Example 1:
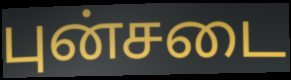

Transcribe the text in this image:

புன்சடை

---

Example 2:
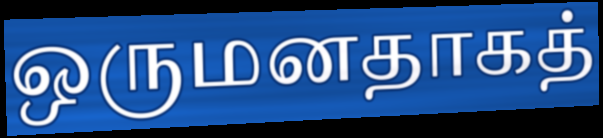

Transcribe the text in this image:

ஒருமனதாகத்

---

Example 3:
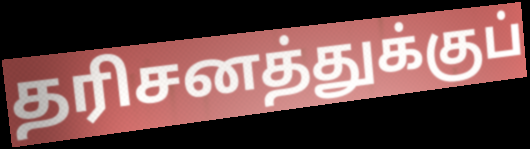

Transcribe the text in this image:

தரிசனத்துக்குப்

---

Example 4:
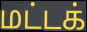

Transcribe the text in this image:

மட்டக்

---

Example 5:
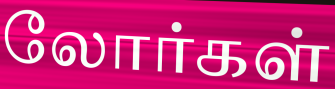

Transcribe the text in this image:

லோர்கள்